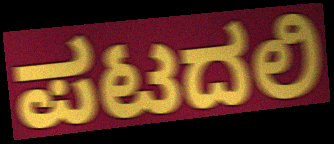
ಪಟದಲಿ